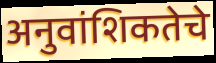
अनुवांशिकतेचे